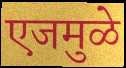
एजमुळे